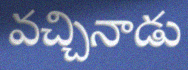
వచ్చినాడు